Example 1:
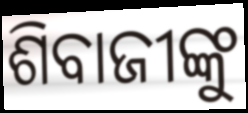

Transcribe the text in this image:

ଶିବାଜୀଙ୍କୁ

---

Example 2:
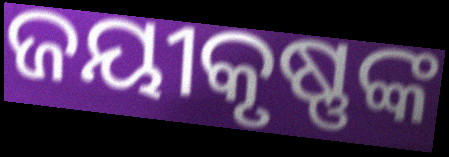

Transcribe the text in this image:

ଜୟୀକୃଷ୍ଣଙ୍କ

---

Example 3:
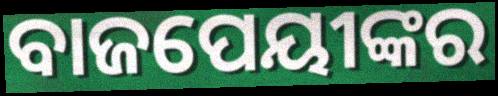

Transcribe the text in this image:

ବାଜପେୟୀଙ୍କର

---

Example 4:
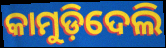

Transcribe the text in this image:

କାମୁଡ଼ିଦେଲି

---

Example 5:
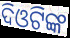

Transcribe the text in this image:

ଦିଓଟିଙ୍କ